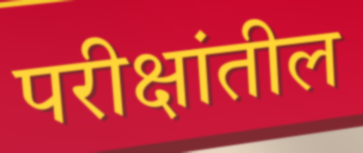
परीक्षांतील